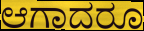
ಆಗಾದರೂ